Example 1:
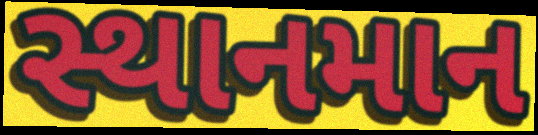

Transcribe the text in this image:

સ્થાનમાન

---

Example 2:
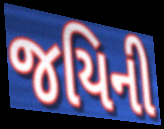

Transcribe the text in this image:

જયિની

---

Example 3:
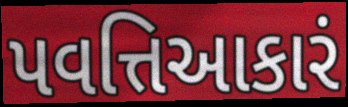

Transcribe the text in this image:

પવત્તિઆકારં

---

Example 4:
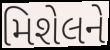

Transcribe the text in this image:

મિશેલને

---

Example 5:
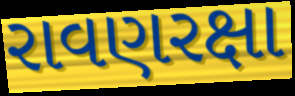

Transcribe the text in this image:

રાવણરક્ષા